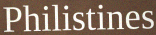
Philistines